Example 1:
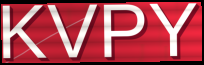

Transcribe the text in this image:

KVPY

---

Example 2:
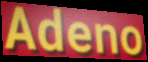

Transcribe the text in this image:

Adeno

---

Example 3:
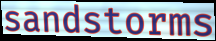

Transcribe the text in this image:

sandstorms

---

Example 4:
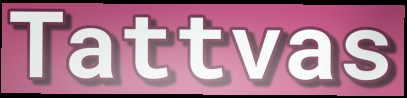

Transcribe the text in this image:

Tattvas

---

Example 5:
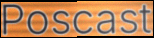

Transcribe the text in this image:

Poscast